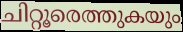
ചിറ്റൂരെത്തുകയും